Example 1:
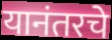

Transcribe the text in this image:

यानंतरचे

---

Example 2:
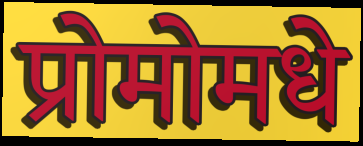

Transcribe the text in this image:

प्रोमोमधे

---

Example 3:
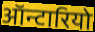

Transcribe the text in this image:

ऑन्टारियो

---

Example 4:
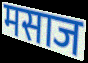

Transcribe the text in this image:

मसाज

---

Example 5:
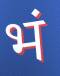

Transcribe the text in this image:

भं